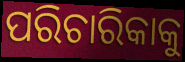
ପରିଚାରିକାକୁ